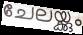
ചേലയ്ക്കും